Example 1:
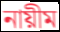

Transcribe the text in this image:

নায়ীম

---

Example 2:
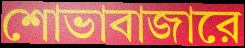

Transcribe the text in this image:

শোভাবাজারে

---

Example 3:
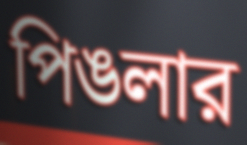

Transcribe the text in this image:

পিঙলার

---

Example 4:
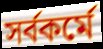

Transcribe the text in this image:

সর্বকর্মে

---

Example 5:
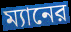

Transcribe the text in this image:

ম্যানের